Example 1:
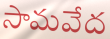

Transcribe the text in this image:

సామవేద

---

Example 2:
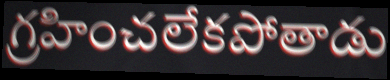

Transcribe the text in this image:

గ్రహించలేకపోతాడు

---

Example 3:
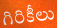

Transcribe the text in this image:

గిరికీలు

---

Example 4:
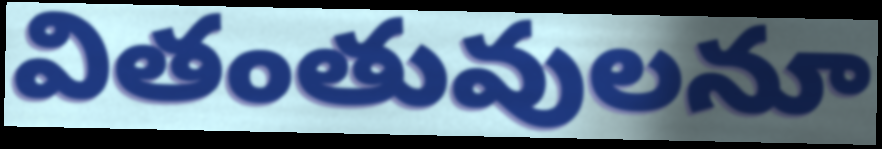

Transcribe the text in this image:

వితంతువులనూ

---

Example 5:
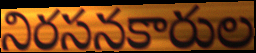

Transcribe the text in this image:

నిరసనకారుల